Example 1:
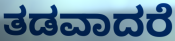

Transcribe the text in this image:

ತಡವಾದರೆ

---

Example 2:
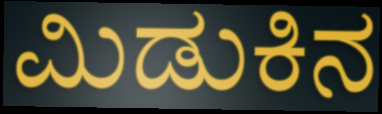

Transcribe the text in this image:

ಮಿಡುಕಿನ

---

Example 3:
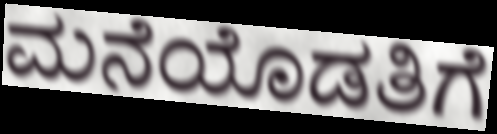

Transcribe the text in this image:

ಮನೆಯೊಡತಿಗೆ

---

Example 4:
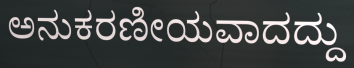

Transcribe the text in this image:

ಅನುಕರಣೀಯವಾದದ್ದು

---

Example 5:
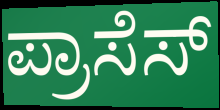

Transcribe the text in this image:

ಪ್ರಾಸೆಸ್